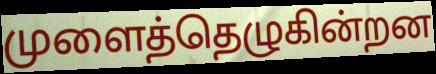
முளைத்தெழுகின்றன